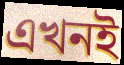
এখনই